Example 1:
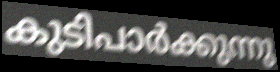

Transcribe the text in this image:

കുടിപാർക്കുന്നു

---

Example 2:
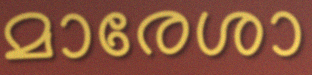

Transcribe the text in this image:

മാരേശാ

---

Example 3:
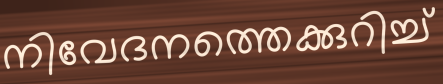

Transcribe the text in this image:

നിവേദനത്തെക്കുറിച്ച്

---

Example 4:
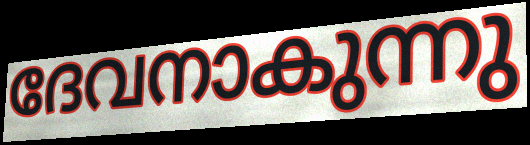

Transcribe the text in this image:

ദേവനാകുന്നു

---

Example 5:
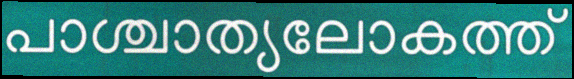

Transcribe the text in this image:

പാശ്ചാത്യലോകത്ത്